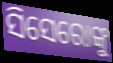
ସିସେରୋଙ୍କୁ